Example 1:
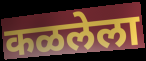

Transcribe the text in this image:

कळलेला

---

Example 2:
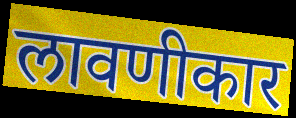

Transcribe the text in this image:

लावणीकार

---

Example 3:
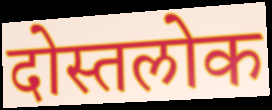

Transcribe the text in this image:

दोस्तलोक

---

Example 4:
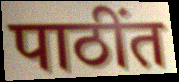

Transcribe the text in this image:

पाठींत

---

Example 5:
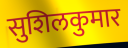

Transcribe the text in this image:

सुशिलकुमार